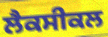
ਲੈਕਸੀਕਲ